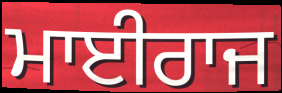
ਮਾਈਰਾਜ